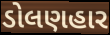
ડોલણહાર